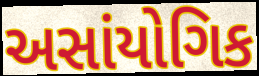
અસાંયોગિક